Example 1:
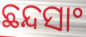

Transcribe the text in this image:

ଛନ୍ଦସାଂ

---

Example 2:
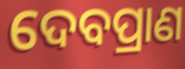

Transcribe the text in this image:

ଦେବପ୍ରାଣ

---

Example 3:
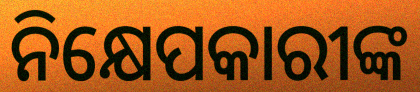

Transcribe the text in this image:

ନିକ୍ଷେପକାରୀଙ୍କ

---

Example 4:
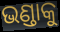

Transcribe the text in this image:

ଭଣ୍ଡାକୁ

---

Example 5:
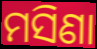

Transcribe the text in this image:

ମସିଣା